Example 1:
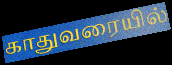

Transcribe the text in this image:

காதுவரையில்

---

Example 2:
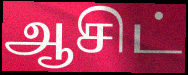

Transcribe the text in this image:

ஆசிட்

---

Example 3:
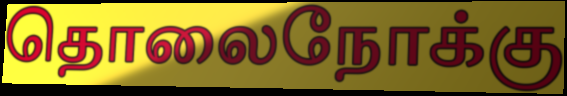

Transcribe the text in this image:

தொலைநோக்கு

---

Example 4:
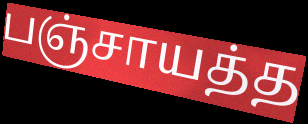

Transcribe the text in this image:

பஞ்சாயத்த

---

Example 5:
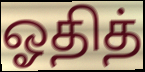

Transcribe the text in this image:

ஓதித்